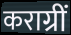
कराग्रीं